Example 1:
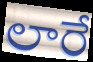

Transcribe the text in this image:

లారే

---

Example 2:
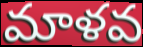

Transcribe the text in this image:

మాళవ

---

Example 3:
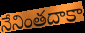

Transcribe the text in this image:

నేనింతదాకా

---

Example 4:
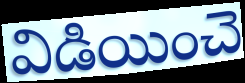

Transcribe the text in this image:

విడియించె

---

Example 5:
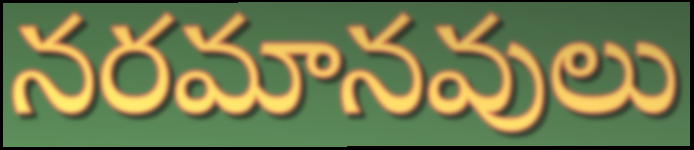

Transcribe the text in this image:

నరమానవులు